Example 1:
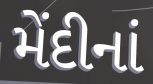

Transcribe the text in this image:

મેંદીનાં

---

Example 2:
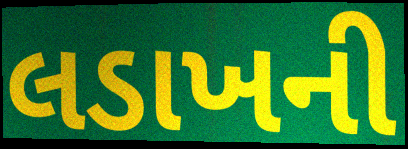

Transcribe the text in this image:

લડાખની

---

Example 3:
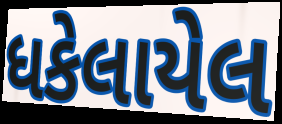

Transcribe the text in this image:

ધકેલાયેલ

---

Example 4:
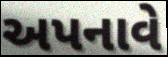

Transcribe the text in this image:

અપનાવે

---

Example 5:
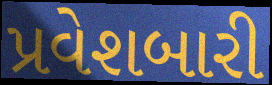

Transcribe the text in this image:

પ્રવેશબારી